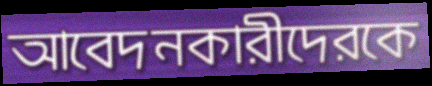
আবেদনকারীদেরকে